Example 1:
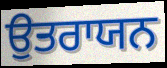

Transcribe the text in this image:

ਉਤਰਾਯਨ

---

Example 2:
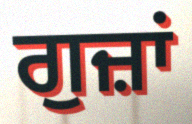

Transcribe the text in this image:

ਗੁਜ਼ਾਂ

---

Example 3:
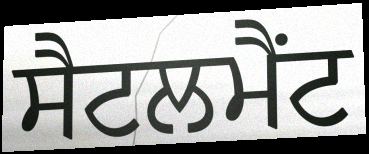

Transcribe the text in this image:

ਸੈਟਲਮੈਂਟ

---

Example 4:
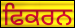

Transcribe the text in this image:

ਫਿਕਰਨ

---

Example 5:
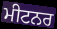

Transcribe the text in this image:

ਮੀਟਨਰ